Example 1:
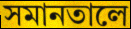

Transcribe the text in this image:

সমানতালে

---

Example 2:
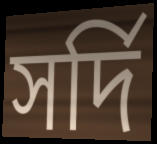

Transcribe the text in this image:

সর্দি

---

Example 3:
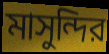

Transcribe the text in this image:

মাসুন্দির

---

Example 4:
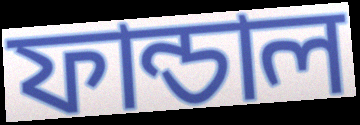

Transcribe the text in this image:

ফান্ডাল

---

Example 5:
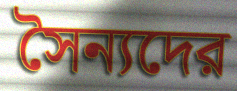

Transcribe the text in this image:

সৈন্যদের